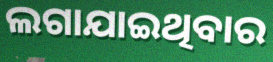
ଲଗାଯାଇଥିବାର